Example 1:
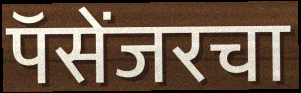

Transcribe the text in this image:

पॅसेंजरचा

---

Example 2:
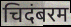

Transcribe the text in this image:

चिदंबरम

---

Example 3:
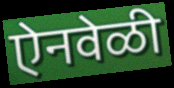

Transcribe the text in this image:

ऐनवेळी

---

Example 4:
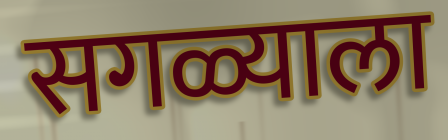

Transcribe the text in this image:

सगळ्याला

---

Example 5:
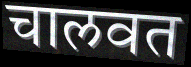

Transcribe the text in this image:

चालवत